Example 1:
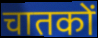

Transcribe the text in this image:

चातकों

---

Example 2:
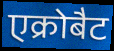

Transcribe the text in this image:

एक्रोबैट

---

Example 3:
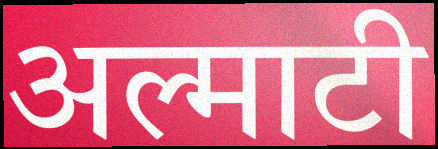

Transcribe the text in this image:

अल्माटी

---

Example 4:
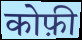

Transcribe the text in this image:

कोफ़ी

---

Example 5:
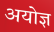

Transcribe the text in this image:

अयोज्ञ